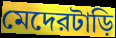
মেদেরটাড়ি